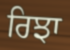
ਰਿਝਾ